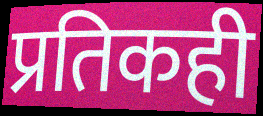
प्रतिकही